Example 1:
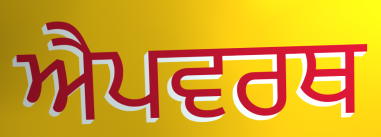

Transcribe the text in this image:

ਐਪਵਰਥ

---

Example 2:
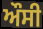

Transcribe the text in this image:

ਔਸੀ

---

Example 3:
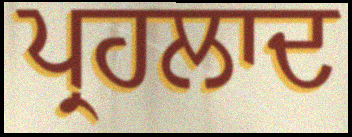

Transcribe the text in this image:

ਪ੍ਰਹਲਾਦ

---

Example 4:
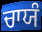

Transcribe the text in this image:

ਚਾਯੰ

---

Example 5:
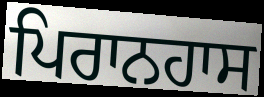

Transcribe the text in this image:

ਪਿਰਾਨਹਾਸ